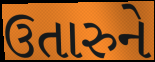
ઉતારુને